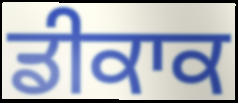
ਡੀਕਾਕ